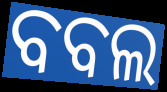
ବବଲ